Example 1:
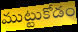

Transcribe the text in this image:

ముట్టుకోడం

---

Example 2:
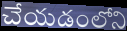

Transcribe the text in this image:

చేయడంలోని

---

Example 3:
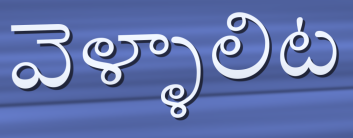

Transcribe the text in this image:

వెళ్ళాలిట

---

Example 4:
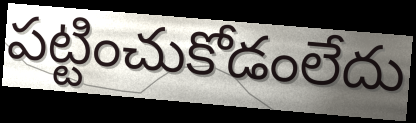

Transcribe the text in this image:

పట్టించుకోడంలేదు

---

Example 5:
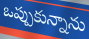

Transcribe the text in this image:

ఒప్పుకున్నాను